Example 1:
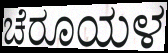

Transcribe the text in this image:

ಚೆರೂಯಳ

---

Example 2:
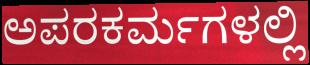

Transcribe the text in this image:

ಅಪರಕರ್ಮಗಳಲ್ಲಿ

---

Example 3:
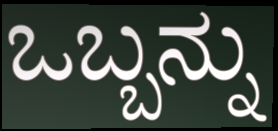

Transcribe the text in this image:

ಒಬ್ಬನ್ನು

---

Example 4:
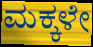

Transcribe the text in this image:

ಮಕ್ಕಳೇ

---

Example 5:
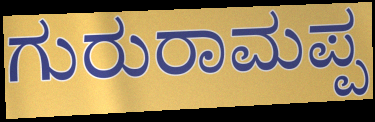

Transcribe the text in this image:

ಗುರುರಾಮಪ್ಪ